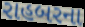
રાહબરના